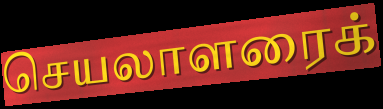
செயலாளரைக்